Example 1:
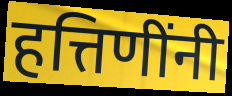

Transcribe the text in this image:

हत्तिणींनी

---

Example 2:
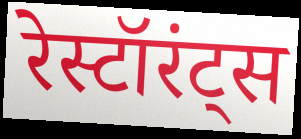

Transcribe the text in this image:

रेस्टॉरंट्स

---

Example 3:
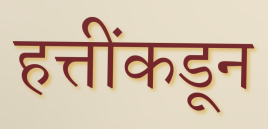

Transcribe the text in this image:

हत्तींकडून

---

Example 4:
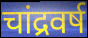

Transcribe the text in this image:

चांद्रवर्ष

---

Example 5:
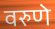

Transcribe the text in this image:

वरुणे